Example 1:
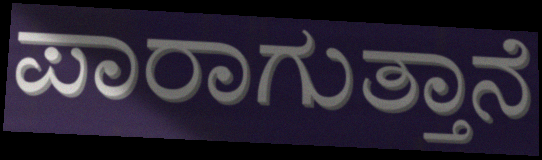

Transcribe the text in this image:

ಪಾರಾಗುತ್ತಾನೆ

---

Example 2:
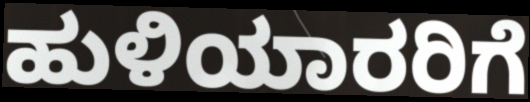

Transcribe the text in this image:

ಹುಳಿಯಾರರಿಗೆ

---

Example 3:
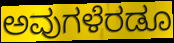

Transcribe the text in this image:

ಅವುಗಳೆರಡೂ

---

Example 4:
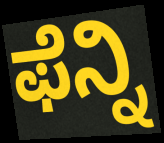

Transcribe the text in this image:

ಫೆನ್ನಿ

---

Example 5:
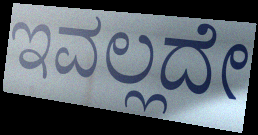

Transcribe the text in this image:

ಇವಲ್ಲದೇ